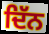
ਦਿੱਨ